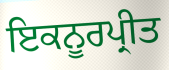
ਇਕਨੂਰਪ੍ਰੀਤ